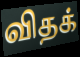
விதக்